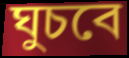
ঘুচবে